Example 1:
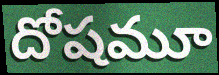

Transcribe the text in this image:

దోషమూ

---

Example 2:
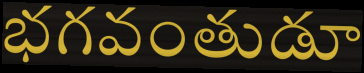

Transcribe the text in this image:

భగవంతుడూ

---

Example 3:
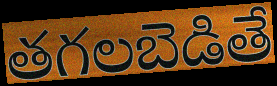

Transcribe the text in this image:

తగలబెడితే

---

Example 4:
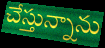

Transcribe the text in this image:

చేస్తున్నాను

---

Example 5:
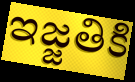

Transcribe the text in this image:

ఇజ్జతికి